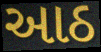
આઠ